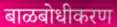
बाळबोधीकरण